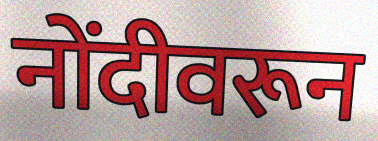
नोंदीवरून